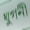
ঘুগনী